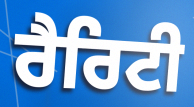
ਰੈਰਿਟੀ